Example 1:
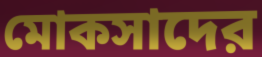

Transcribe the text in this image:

মোকসাদের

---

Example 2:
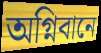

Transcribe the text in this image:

অগ্নিবানে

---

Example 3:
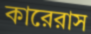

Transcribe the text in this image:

কারেরাস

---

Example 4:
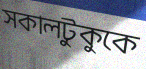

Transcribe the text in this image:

সকালটুকুকে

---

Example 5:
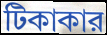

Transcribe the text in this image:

টিকাকার